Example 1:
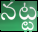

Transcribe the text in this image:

నట్ట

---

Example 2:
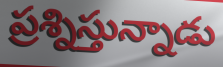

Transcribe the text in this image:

ప్రశ్నిస్తున్నాడు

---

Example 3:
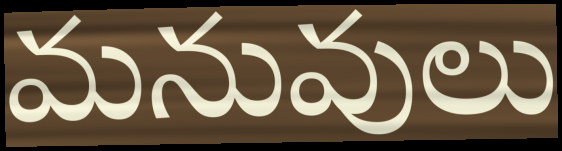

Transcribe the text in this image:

మనువులు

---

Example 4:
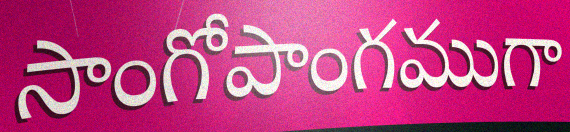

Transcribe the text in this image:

సాంగోపాంగముగా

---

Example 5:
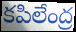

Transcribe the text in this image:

కపిలేంద్ర